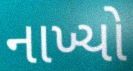
નાખ્યો